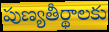
పుణ్యతీర్థాలకు